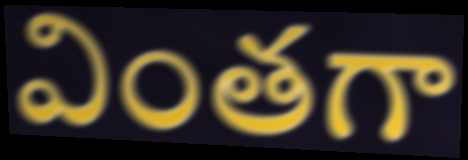
వింతగా